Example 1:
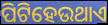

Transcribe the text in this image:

ପିଟିହେଉଥାଏ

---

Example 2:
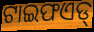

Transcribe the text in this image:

ଟାଇଫଏଡ୍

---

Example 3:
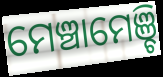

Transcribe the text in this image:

ମେଞ୍ଚାମେଞ୍ଚି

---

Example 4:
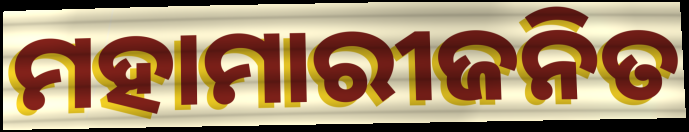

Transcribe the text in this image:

ମହାମାରୀଜନିତ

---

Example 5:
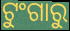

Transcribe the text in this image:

ଟୁଂଗାରୁ